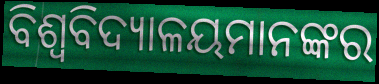
ବିଶ୍ଵବିଦ୍ୟାଳୟମାନଙ୍କର